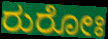
ರುರೋಃ